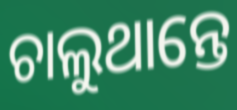
ଚାଲୁଥାନ୍ତେ